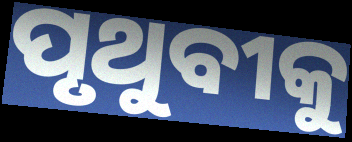
ପୃଥୁବୀକୁ